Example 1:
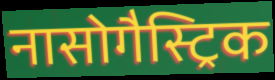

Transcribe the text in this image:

नासोगैस्ट्रिक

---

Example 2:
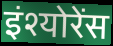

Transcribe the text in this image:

इंश्योरेंस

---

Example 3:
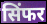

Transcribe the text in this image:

सिंफर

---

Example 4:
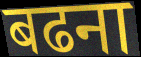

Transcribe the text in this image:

बढना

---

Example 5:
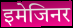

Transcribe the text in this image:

इमेजिनर